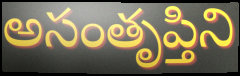
అసంతృప్తిని